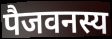
पैजवनस्य